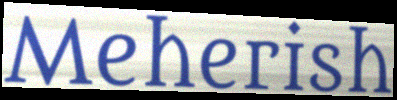
Meherish